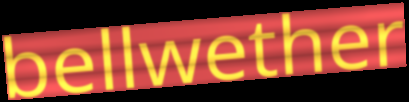
bellwether